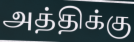
அத்திக்கு